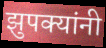
झुपक्यांनी